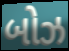
બોઝ